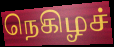
நெகிழச்